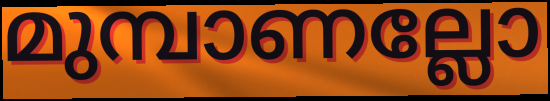
മുമ്പാണല്ലോ